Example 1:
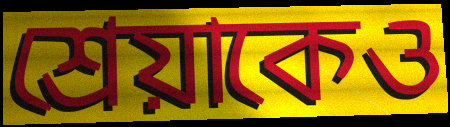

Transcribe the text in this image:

শ্রেয়াকেও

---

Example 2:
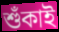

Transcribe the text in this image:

শুঁকাই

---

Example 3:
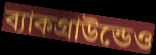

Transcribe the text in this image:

ব্যাকগ্রাউন্ডেও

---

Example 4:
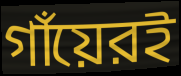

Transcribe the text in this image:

গাঁয়েরই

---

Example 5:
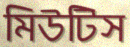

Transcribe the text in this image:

মিউটিস